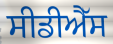
ਸੀਡੀਐੱਸ